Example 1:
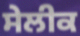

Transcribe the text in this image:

ਸੇਲੀਕ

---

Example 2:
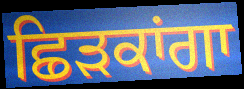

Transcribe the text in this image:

ਛਿੜਕਾਂਗਾ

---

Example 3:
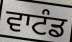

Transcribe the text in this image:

ਵਾਟੰਡ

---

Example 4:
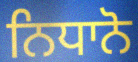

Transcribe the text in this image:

ਨਿਧਾਨੋ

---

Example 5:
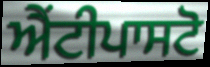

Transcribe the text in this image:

ਐਂਟੀਪਾਸਟੋ